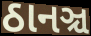
ઠાનઞ્ચ